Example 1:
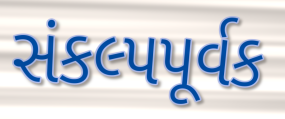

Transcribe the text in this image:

સંકલ્પપૂર્વક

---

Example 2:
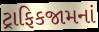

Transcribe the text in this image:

ટ્રાફિકજામનાં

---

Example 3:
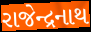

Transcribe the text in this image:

રાજેન્દ્રનાથ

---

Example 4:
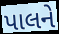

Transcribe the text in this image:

પાલને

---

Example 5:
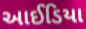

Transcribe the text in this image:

આઈડિયા